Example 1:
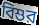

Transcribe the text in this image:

বিশুর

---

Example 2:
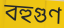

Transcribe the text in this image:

বহুগুণ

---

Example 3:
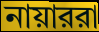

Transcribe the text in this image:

নায়াররা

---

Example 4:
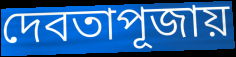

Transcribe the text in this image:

দেবতাপূজায়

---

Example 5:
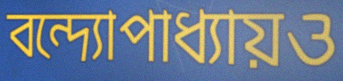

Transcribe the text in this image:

বন্দ্যোপাধ্যায়ও